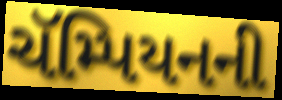
ચૅમ્પિયનની